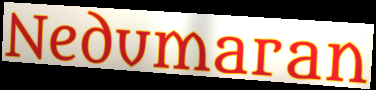
Nedumaran